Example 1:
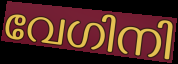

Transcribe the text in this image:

വേഗിനി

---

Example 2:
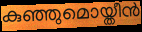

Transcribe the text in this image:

കുഞ്ഞുമൊയ്തീൻ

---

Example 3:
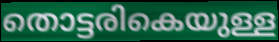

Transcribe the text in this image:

തൊട്ടരികെയുള്ള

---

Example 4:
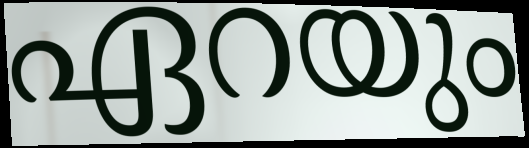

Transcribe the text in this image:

ഏറയും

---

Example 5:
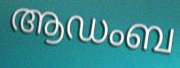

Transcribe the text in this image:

ആഡംബ